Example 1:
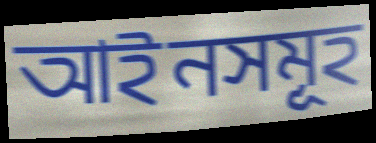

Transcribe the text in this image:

আইনসমূহ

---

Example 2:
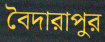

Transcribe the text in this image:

বৈদারাপুর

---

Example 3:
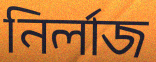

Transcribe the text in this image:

নির্লাজ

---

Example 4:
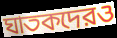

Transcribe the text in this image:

ঘাতকদেরও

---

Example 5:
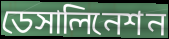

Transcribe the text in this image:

ডেসালিনেশন